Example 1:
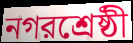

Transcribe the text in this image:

নগরশ্রেষ্ঠী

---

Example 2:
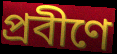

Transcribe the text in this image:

প্রবীণে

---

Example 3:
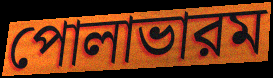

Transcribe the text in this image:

পোলাভারম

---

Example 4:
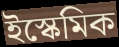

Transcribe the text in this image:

ইস্কেমিক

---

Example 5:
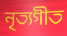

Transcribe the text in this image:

নৃত্যগীত